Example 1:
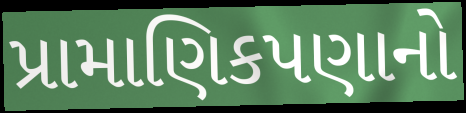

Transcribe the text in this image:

પ્રામાણિકપણાનો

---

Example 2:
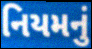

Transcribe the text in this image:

નિયમનું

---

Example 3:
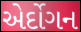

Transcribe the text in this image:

એર્દોગન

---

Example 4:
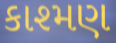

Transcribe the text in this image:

કાશ્મણ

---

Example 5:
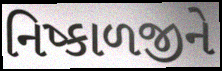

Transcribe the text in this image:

નિષ્કાળજીને